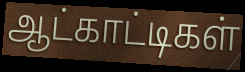
ஆட்காட்டிகள்